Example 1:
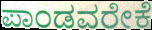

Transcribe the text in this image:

ಪಾಂಡವರೇಕೆ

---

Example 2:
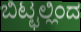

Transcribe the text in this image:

ಬಿಟ್ಟಲ್ಲಿಂದ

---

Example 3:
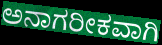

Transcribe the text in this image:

ಅನಾಗರೀಕವಾಗಿ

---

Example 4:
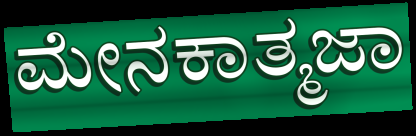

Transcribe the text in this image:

ಮೇನಕಾತ್ಮಜಾ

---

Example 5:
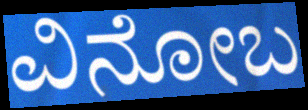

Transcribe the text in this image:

ವಿನೋಬ